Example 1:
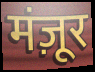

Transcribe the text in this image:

मंज़ूर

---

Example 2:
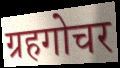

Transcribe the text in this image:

ग्रहगोचर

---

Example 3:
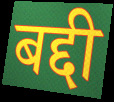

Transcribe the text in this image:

बद्दी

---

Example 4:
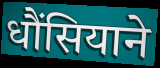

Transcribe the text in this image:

धौंसियाने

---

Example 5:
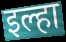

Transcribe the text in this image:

इल्हा